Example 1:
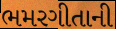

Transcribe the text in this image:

ભમરગીતાની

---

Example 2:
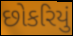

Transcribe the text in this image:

છોકરિયું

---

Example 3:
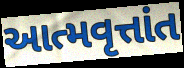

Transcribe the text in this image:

આત્મવૃત્તાંત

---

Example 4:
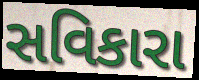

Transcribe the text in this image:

સવિકારા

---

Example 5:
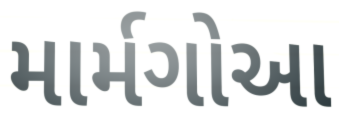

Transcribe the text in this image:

માર્મગોઆ